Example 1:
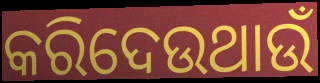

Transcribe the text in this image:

କରିଦେଉଥାଉଁ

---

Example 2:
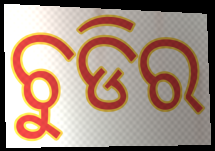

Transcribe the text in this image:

ଚୁଡିର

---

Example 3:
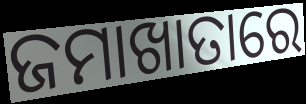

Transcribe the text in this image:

ଜମାଖାତାରେ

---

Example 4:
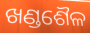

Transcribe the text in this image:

ଖଣ୍ଡଶୈଳ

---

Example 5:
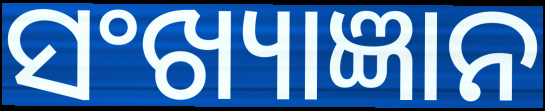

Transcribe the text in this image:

ସଂଖ୍ୟାଜ୍ଞାନ